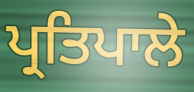
ਪ੍ਰਤਿਪਾਲੇ